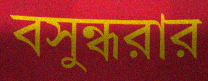
বসুন্ধরার